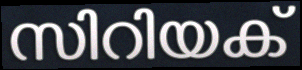
സിറിയക്